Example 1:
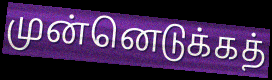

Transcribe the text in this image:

முன்னெடுக்கத்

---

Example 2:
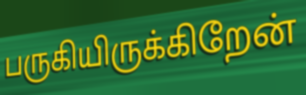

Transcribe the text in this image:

பருகியிருக்கிறேன்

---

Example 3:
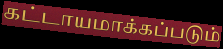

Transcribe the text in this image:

கட்டாயமாக்கப்படும்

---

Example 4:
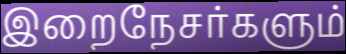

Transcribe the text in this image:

இறைநேசர்களும்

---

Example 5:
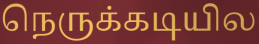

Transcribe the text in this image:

நெருக்கடியில